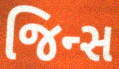
જિન્સ